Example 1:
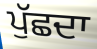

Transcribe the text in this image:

ਪੁੱਛਦਾ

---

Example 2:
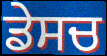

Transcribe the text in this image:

ਡੇਸਚ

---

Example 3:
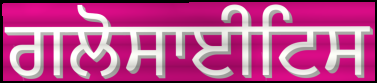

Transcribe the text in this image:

ਗਲੋਸਾਈਟਿਸ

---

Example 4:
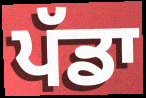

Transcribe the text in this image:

ਪੱਡਾ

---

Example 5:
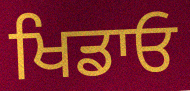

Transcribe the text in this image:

ਖਿਡਾਓ